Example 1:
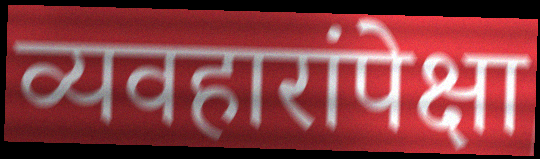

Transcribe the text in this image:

व्यवहारांपेक्षा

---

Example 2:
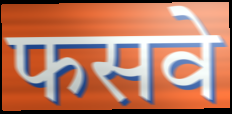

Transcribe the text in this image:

फसवे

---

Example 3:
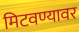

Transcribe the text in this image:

मिटवण्यावर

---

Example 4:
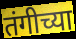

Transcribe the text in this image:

तंगीच्या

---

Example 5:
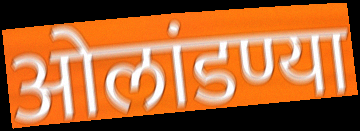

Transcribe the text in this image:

ओलांडण्या